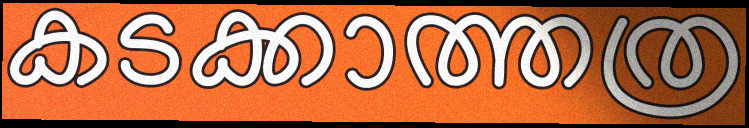
കടക്കാത്തത്ര